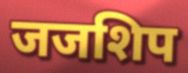
जजशिप